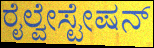
ರೈಲ್ವೇಸ್ಟೇಷನ್